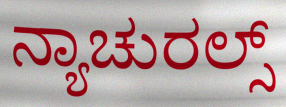
ನ್ಯಾಚುರಲ್ಸ್